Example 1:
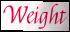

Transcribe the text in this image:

Weight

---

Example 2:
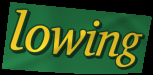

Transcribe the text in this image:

lowing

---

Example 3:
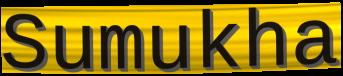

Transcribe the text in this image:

Sumukha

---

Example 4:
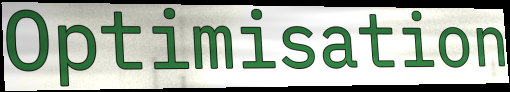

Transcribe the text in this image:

Optimisation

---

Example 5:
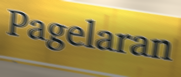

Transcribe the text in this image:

Pagelaran